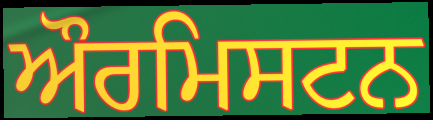
ਔਰਮਿਸਟਨ